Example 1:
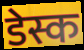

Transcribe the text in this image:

डेस्क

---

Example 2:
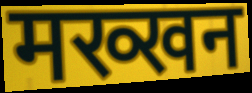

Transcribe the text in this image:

मख्खन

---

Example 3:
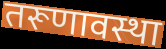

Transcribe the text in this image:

तरूणावस्था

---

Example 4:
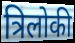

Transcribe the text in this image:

त्रिलोकी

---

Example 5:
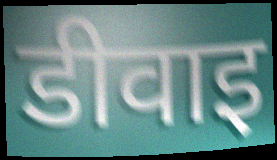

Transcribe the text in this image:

डीवाइ